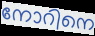
നോറിനെ